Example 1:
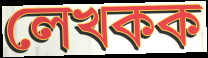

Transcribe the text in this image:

লেখকক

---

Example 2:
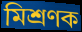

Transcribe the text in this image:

মিশ্ৰণক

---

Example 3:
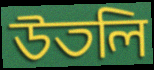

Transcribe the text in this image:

উতলি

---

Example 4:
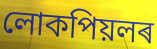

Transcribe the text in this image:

লোকপিয়লৰ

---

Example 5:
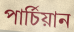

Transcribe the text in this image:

পাৰ্চিয়ান